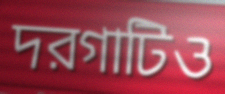
দরগাটিও